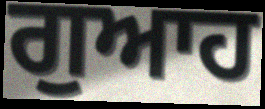
ਗੁਆਹ